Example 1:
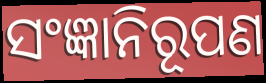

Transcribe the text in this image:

ସଂଜ୍ଞାନିରୂପଣ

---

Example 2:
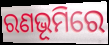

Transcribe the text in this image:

ରଣଭୂମିରେ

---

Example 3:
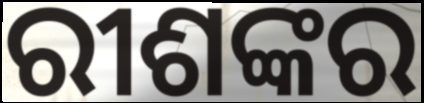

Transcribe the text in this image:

ରୀଶଙ୍କର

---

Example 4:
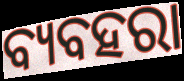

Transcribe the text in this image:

ବ୍ୟବହରା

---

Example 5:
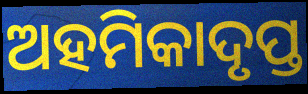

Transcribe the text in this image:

ଅହମିକାଦୃପ୍ତ